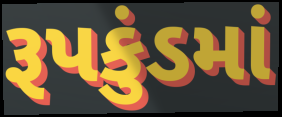
રૂપકુંડમાં